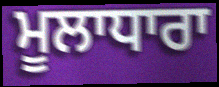
ਮੂਲਾਧਾਰਾ